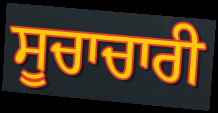
ਸੂਚਾਚਾਰੀ